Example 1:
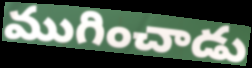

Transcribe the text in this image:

ముగించాడు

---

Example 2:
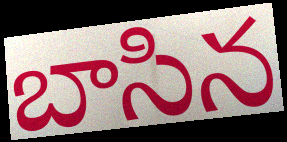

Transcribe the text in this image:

బాసిన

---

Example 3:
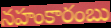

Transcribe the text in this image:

నహంకారంబు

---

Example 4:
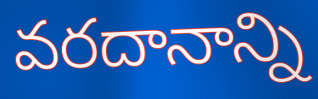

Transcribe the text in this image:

వరదానాన్ని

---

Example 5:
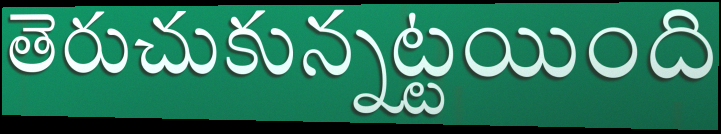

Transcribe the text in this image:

తెరుచుకున్నట్టయింది